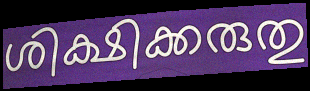
ശിക്ഷിക്കരുതു